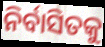
ନିର୍ବାସିତକୁ